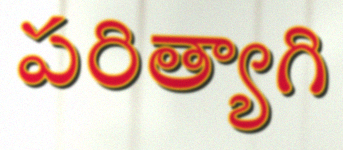
పరిత్యాగి